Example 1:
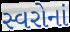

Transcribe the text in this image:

સ્વરોનાં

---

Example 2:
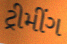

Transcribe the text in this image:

ટ્રીમીંગ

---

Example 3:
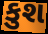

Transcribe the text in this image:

કુશ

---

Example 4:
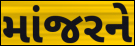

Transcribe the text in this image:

માંજરને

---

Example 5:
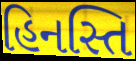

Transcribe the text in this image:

હિનસ્તિ